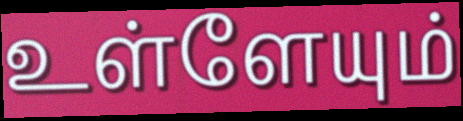
உள்ளேயும்